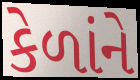
કેળાંને